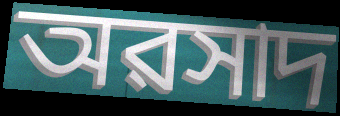
অৱসাদ